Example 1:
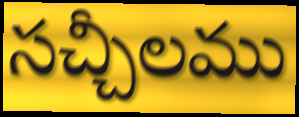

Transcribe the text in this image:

సచ్చీలము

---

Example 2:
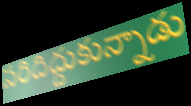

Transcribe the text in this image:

సరిదిద్దుకున్నాడు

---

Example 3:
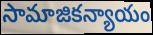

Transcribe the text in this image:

సామాజికన్యాయం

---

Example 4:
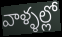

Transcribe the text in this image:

వాళ్ళల్లో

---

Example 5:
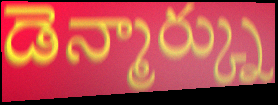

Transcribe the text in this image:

డెన్మార్క్ను